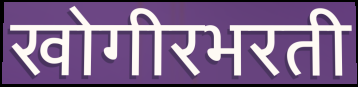
खोगीरभरती